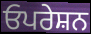
ਓਪਰੇਸ਼ਨ